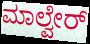
ಮಾಲ್ವೇರ್